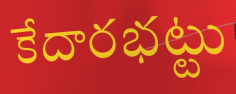
కేదారభట్టు